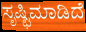
ಸೃಷ್ಟಿಮಾಡಿದೆ